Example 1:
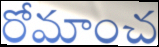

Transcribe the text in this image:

రోమాంచ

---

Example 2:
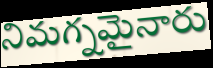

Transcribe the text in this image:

నిమగ్నమైనారు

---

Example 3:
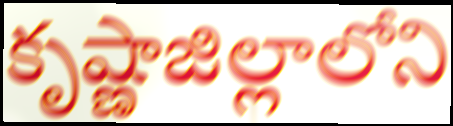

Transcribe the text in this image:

కృష్ణాజిల్లాలోని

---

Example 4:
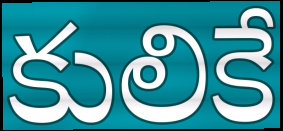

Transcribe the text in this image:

కులికే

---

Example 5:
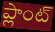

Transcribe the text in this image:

ప్లాంట్